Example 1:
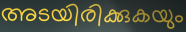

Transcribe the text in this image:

അടയിരിക്കുകയും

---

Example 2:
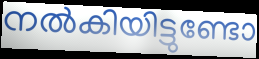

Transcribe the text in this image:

നൽകിയിട്ടുണ്ടോ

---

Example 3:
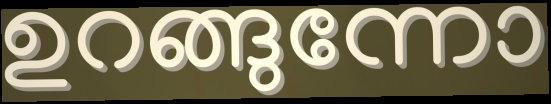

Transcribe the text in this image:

ഉറങ്ങുന്നോ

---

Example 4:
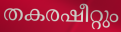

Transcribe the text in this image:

തകരഷീറ്റും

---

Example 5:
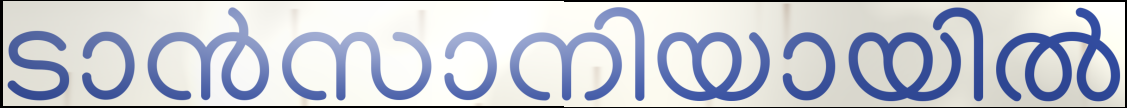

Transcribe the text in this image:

ടാൻസാനിയായിൽ